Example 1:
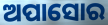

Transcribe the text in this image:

ଅପାସୋର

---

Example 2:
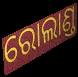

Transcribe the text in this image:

ରୋଲାଣ୍ଡ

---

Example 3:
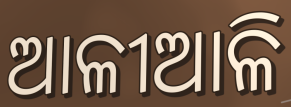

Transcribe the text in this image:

ଆଳୀଆଳି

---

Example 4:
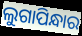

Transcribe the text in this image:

ଲୁଗାପିନ୍ଧାର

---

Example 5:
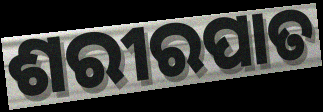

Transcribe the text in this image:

ଶରୀରପାତ